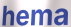
hema